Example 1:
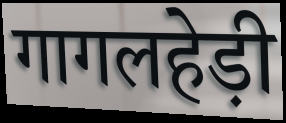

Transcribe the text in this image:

गागलहेड़ी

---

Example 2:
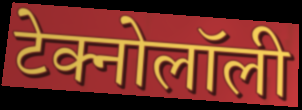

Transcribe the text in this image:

टेक्नोलॉली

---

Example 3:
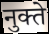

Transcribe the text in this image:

नुक्ते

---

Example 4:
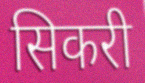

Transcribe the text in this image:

सिकरी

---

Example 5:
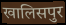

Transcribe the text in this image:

खालिसपुर